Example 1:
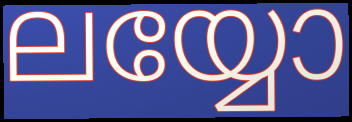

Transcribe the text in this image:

ലയ്യോ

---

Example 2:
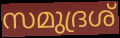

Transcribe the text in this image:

സമുദ്രശ്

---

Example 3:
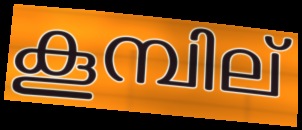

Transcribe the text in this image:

കൂമ്പില്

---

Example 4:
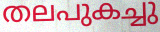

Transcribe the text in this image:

തലപുകച്ചു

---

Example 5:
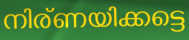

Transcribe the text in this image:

നിര്ണയിക്കട്ടെ